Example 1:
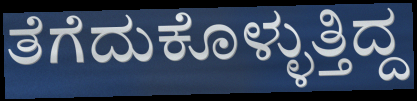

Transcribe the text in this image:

ತೆಗೆದುಕೊಳ್ಳುತ್ತಿದ್ದ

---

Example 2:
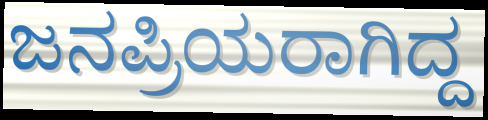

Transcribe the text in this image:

ಜನಪ್ರಿಯರಾಗಿದ್ದ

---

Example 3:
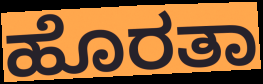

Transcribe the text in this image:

ಹೊರತಾ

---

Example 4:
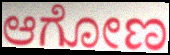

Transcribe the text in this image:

ಆಗೋಣ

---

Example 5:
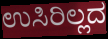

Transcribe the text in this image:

ಉಸಿರಿಲ್ಲದ